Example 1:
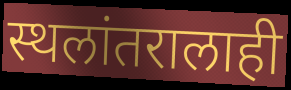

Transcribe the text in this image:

स्थलांतरालाही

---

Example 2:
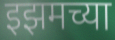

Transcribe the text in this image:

इझमच्या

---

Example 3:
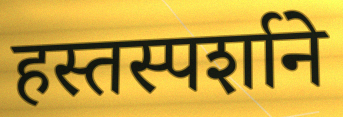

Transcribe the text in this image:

हस्तस्पर्शाने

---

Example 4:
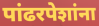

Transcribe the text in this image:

पांढरपेशांना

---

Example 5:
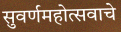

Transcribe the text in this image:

सुवर्णमहोत्सवाचे